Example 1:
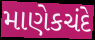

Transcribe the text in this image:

માણેકચંદે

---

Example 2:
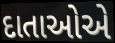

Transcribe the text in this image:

દાતાઓએ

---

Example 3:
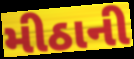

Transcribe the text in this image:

મીઠાની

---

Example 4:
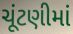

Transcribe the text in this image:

ચૂંટણીમાં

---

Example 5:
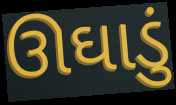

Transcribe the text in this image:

ઊઘાડું